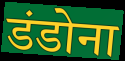
डंडोना